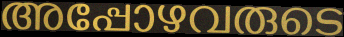
അപ്പോഴവരുടെ